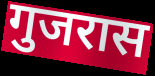
गुजरास